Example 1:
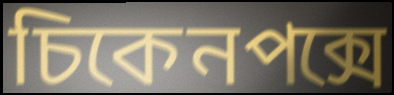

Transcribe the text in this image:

চিকেনপক্সে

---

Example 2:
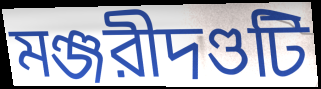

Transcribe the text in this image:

মঞ্জরীদণ্ডটি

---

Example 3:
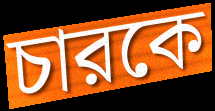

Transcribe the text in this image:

চারকে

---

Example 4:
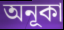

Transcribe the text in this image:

অনূকা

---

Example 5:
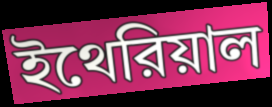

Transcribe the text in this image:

ইথেরিয়াল